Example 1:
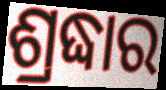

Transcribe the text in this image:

ଶ୍ରଦ୍ଧାର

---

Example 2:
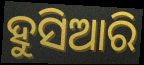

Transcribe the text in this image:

ହୁସିଆରି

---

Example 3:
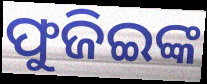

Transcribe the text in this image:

ଫୁଜିଇଙ୍କ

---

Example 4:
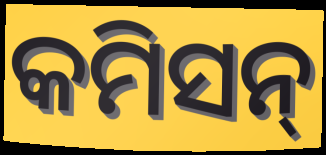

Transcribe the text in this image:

କମିସନ୍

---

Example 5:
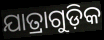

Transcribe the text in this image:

ଯାତ୍ରାଗୁଡ଼ିକ